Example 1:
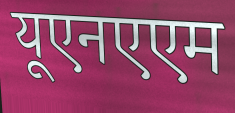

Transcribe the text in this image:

यूएनएएम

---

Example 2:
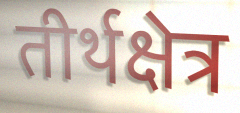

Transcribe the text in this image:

तीर्थक्षेत्र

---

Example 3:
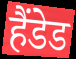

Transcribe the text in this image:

हैंडेड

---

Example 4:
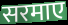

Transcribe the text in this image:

सरमाए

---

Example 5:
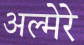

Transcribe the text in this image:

अल्मेरे